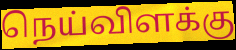
நெய்விளக்கு